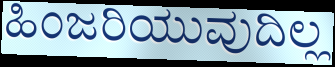
ಹಿಂಜರಿಯುವುದಿಲ್ಲ